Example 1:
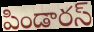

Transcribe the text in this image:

పిండారస్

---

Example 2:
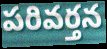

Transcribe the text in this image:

పరివర్తన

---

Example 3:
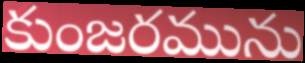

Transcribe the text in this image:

కుంజరమును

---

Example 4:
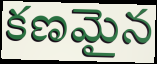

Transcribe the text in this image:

కణమైన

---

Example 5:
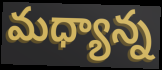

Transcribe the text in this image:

మధ్యాన్న